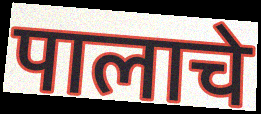
पालाचे